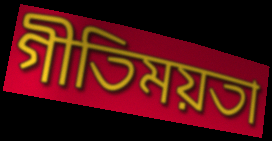
গীতিময়তা